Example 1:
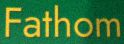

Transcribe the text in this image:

Fathom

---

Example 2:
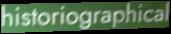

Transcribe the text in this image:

historiographical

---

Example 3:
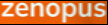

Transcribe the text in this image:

zenopus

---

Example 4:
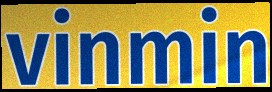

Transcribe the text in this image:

vinmin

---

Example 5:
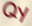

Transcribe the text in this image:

Qy